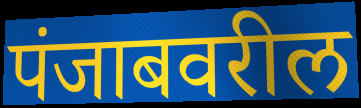
पंजाबवरील